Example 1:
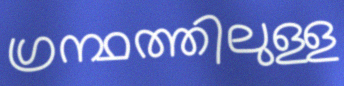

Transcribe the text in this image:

ഗ്രന്ഥത്തിലുള്ള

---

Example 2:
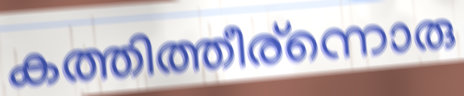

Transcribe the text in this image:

കത്തിത്തീര്ന്നൊരു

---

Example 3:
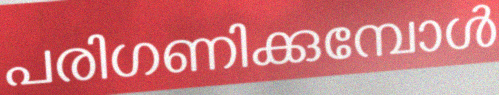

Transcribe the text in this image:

പരിഗണിക്കുമ്പോൾ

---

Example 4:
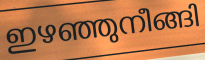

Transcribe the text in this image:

ഇഴഞ്ഞുനീങ്ങി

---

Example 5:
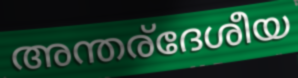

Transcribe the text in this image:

അന്തര്ദേശീയ